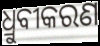
ଧ୍ରୁବୀକରଣ